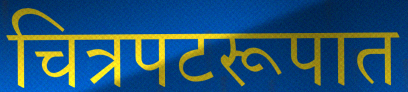
चित्रपटरूपात